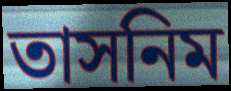
তাসনিম